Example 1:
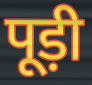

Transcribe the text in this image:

पूड़ी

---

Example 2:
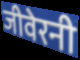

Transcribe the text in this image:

जीवेरनी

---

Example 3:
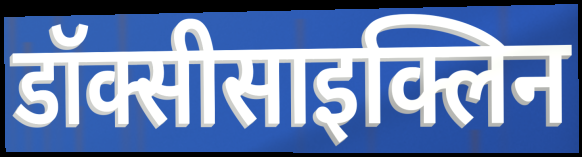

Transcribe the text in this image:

डॉक्सीसाइक्लिन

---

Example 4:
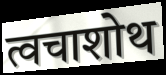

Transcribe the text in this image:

त्वचाशोथ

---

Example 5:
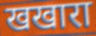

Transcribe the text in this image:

खखारा